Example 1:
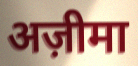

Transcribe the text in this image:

अज़ीमा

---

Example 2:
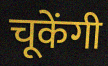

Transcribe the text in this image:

चूकेंगी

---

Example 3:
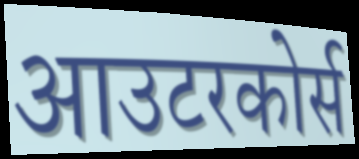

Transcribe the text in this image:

आउटरकोर्स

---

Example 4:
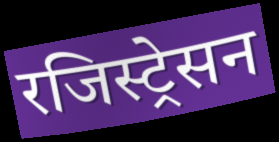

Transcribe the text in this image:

रजिस्ट्रेसन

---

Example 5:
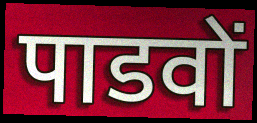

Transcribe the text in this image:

पाडवों